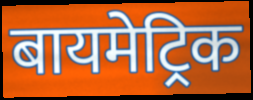
बायमेट्रिक